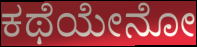
ಕಥೆಯೇನೋ